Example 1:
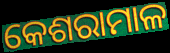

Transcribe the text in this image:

କେଶରାମାଳ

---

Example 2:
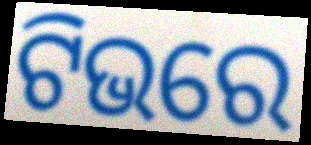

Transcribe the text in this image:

ଟିଭରେ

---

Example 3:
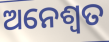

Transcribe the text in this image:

ଅନେଶ୍ଵତ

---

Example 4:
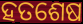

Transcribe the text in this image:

ହତଶେଷ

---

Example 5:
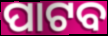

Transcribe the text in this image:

ପାଟବ